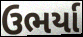
ઉભર્યા